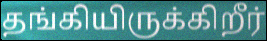
தங்கியிருக்கிறீர்